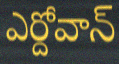
ఎర్దోవాన్